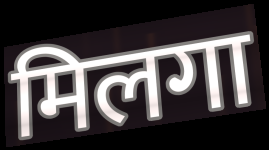
मिलगा